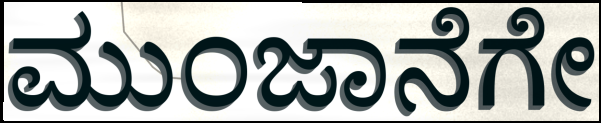
ಮುಂಜಾನೆಗೇ